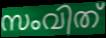
സംവിത്